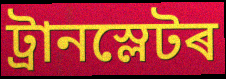
ট্ৰানস্লেটৰ